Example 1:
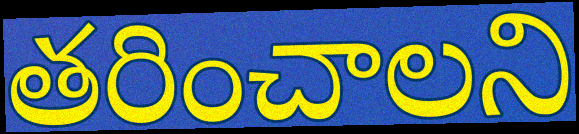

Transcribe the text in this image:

తరించాలని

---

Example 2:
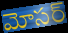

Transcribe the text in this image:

మోసర్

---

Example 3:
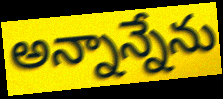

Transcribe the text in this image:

అన్నాన్నేను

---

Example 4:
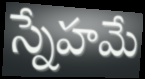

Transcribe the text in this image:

స్నేహమే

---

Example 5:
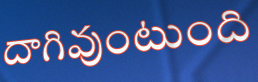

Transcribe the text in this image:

దాగివుంటుంది